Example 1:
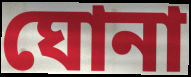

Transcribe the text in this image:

ঘোনা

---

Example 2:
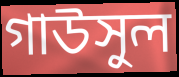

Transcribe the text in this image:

গাউসুল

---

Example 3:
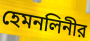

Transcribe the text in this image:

হেমনলিনীর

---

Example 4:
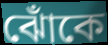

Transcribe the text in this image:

ঝোঁকে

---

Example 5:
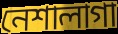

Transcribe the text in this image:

নেশালাগা